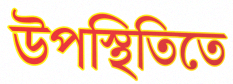
উপস্থিতিতে